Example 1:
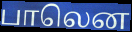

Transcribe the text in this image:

பாலென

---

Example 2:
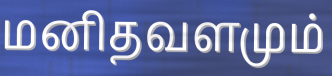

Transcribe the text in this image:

மனிதவளமும்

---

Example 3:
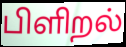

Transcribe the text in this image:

பிளிறல்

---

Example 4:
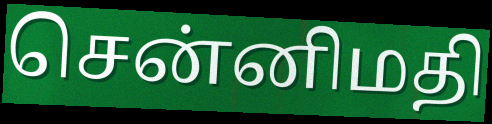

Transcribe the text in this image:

சென்னிமதி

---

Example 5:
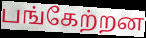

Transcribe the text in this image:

பங்கேற்றன